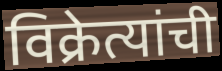
विक्रेत्यांची